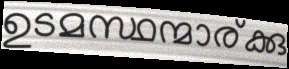
ഉടമസ്ഥന്മാര്ക്കു